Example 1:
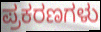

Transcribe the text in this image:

ಪ್ರಕರಣಗಳು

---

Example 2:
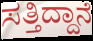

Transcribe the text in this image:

ಸತ್ತಿದ್ದಾನೆ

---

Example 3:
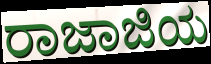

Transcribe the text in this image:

ರಾಜಾಜಿಯ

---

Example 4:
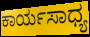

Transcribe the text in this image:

ಕಾರ್ಯಸಾಧ್ಯ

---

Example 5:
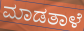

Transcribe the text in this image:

ಮಾಡತಾಳೆ